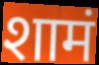
शामं